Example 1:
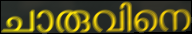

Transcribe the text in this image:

ചാരുവിനെ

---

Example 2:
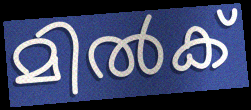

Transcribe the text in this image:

മിൽക്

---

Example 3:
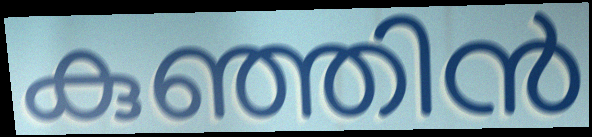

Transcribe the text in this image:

കുഞ്ഞിൻ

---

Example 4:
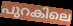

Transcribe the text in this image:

പുറകിലെ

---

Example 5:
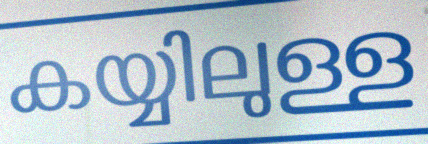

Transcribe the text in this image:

കയ്യിലുള്ള